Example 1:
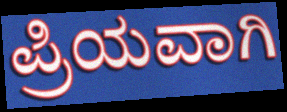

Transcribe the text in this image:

ಪ್ರಿಯವಾಗಿ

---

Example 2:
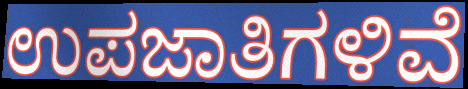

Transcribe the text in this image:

ಉಪಜಾತಿಗಳಿವೆ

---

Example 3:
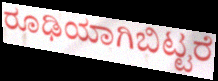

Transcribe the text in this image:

ರೂಢಿಯಾಗಿಬಿಟ್ಟರೆ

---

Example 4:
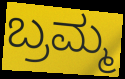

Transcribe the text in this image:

ಬ್ರಮ್ಮ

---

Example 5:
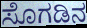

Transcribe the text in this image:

ಸೊಗಡಿನ